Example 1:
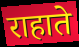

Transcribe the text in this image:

राहाते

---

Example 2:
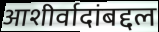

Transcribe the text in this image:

आशीर्वादांबद्दल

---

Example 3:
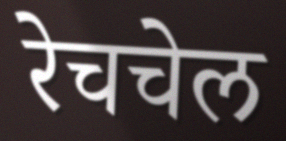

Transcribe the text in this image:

रेचचेल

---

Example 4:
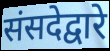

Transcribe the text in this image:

संसदेद्वारे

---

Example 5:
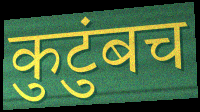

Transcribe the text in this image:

कुटुंबच